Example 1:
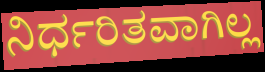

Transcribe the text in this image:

ನಿರ್ಧರಿತವಾಗಿಲ್ಲ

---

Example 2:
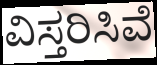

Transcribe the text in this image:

ವಿಸ್ತರಿಸಿವೆ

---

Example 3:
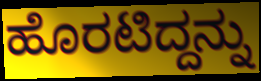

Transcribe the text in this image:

ಹೊರಟಿದ್ದನ್ನು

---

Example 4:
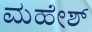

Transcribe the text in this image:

ಮಹೇಶ್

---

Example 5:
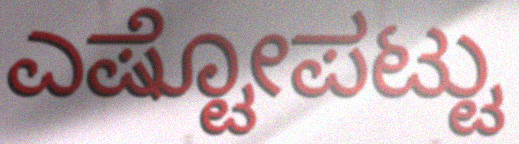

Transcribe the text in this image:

ಎಷ್ಟೋಪಟ್ಟು